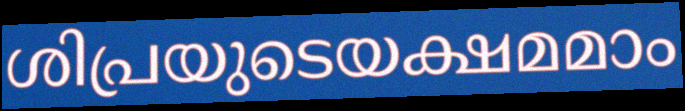
ശിപ്രയുടെയക്ഷമമാം